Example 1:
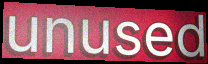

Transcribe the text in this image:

unused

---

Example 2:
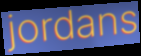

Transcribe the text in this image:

jordans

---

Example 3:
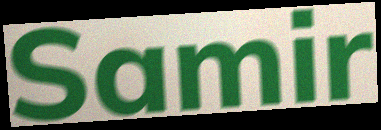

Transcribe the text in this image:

Samir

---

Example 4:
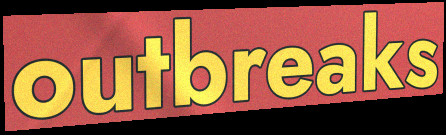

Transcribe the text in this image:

outbreaks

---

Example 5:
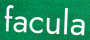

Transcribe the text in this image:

facula